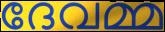
ദേവമ്മ